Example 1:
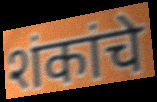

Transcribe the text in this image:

शंकांचे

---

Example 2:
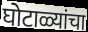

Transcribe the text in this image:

घोटाळ्यांचा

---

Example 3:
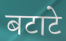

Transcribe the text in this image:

बटाटे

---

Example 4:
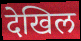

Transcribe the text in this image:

देखिल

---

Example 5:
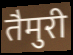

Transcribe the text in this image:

तैमुरी